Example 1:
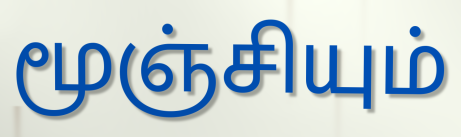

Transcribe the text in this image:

மூஞ்சியும்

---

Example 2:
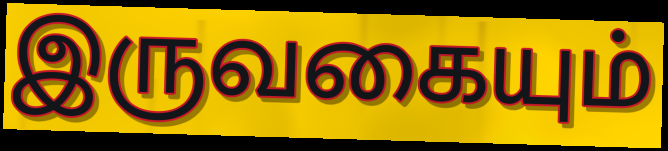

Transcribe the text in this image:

இருவகையும்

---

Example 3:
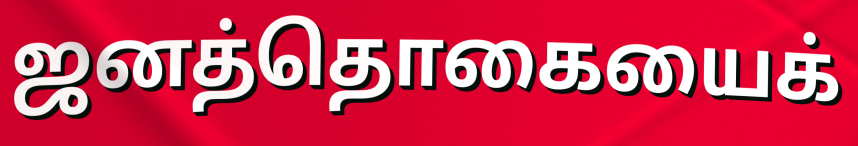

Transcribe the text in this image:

ஜனத்தொகையைக்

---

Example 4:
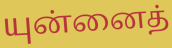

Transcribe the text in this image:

யுன்னைத்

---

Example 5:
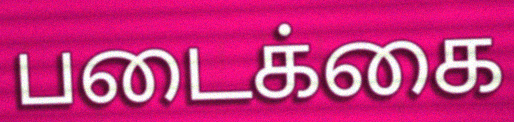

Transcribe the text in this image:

படைக்கை